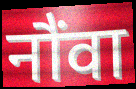
नौंवा